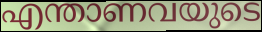
എന്താണവയുടെ